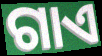
ଗାଏ